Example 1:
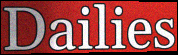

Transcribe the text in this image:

Dailies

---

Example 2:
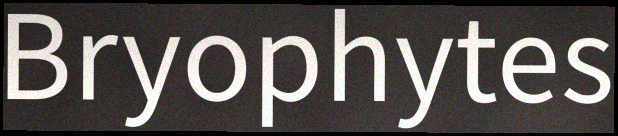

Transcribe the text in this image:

Bryophytes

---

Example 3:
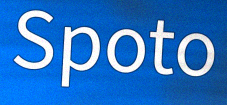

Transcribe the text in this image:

Spoto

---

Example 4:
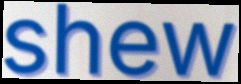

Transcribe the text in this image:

shew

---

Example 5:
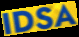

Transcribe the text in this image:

IDSA